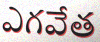
ఎగవేత